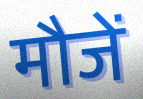
मौजें